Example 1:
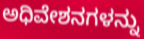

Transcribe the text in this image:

ಅಧಿವೇಶನಗಳನ್ನು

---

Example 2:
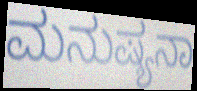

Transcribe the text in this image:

ಮನುಷ್ಯನಾ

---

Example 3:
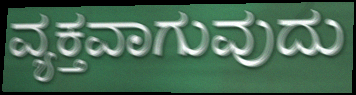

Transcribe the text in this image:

ವ್ಯಕ್ತವಾಗುವುದು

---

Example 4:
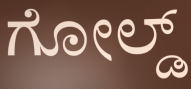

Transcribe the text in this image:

ಗೋಲ್ಡ್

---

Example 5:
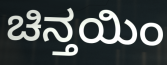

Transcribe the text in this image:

ಚಿನ್ತಯಿಂ